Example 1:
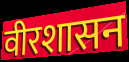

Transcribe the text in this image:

वीरशासन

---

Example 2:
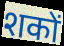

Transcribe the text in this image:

शकों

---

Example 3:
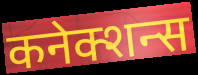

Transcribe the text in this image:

कनेक्शन्स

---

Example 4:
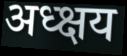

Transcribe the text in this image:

अध्क्षय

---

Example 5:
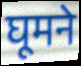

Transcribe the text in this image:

घूमने